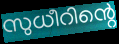
സുധീറിന്റെ